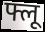
फ्लू